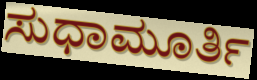
ಸುಧಾಮೂರ್ತಿ